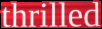
thrilled